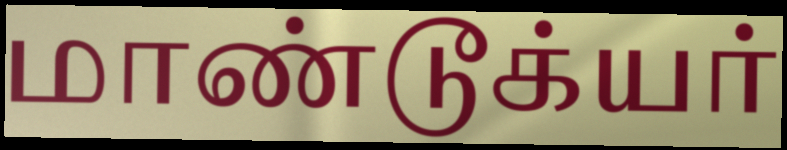
மாண்டூக்யர்